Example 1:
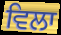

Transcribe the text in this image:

ਵਿਲਾ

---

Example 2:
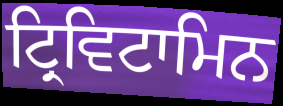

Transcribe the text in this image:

ਟ੍ਰਿਵਿਟਾਮਿਨ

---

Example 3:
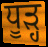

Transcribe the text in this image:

ਧੂੜ੍ਹ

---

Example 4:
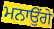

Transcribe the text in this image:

ਮਨਾਉਂਗੇ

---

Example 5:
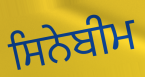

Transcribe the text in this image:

ਸਿਨੇਬੀਮ